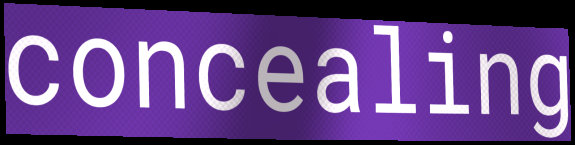
concealing